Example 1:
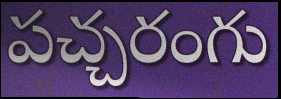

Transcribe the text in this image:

పచ్చరంగు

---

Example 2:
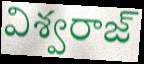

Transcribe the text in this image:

విశ్వరాజ్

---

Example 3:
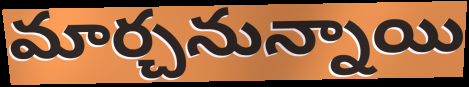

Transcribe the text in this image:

మార్చనున్నాయి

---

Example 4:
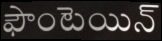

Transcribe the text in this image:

ఫౌంటెయిన్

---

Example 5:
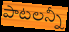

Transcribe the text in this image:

పాటలన్నీ